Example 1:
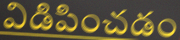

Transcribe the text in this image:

విడిపించడం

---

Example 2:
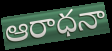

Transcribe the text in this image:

ఆరాధనా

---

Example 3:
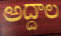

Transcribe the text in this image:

అద్దాల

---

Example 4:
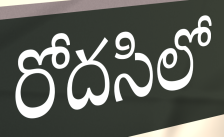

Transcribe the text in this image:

రోదసిలో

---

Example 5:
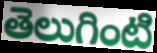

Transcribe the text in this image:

తెలుగింటి